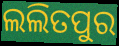
ଲଲିତପୁର